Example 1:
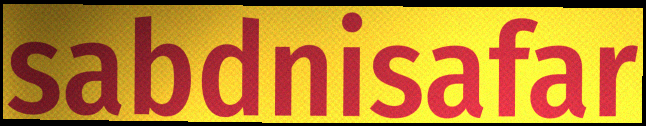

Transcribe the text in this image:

sabdnisafar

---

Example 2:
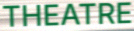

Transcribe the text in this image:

THEATRE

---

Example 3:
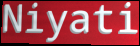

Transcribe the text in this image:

Niyati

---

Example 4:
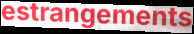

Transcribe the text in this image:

estrangements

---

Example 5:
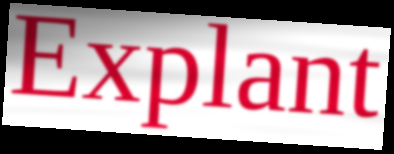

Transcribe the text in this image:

Explant